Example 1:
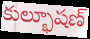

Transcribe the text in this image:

కుల్భూషణ్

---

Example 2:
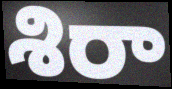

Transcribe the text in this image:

శిరా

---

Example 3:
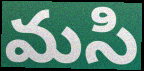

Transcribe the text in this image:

మసి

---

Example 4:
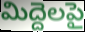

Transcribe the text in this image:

మిద్దెలపై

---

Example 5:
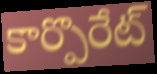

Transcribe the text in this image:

కార్పొరేట్